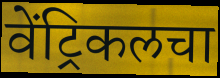
वेंट्रिकलचा